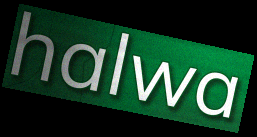
halwa